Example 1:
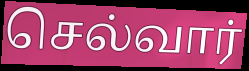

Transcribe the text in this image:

செல்வார்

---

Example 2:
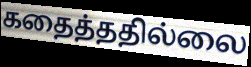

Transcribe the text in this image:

கதைத்ததில்லை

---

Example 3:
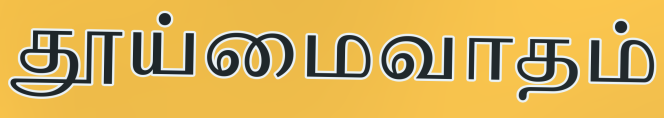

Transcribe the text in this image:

தூய்மைவாதம்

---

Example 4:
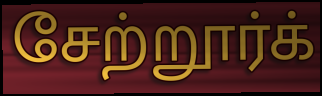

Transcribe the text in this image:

சேற்றூர்க்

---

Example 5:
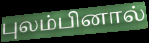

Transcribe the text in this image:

புலம்பினால்